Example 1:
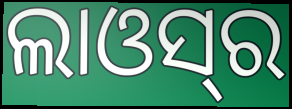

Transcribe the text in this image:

ଲାଓସ୍‌ର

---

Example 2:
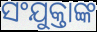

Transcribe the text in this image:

ସଂଯୁକ୍ତାଙ୍କ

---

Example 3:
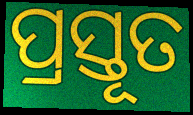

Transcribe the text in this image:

ପ୍ରସ୍ତୂତ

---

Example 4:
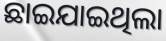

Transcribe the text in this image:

ଛାଇଯାଇଥିଲା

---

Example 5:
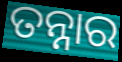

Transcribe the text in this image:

ତନ୍ନାର